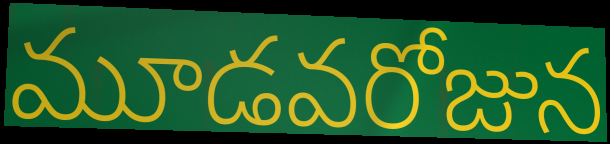
మూడవరోజున